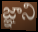
జ్ఞాని